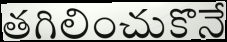
తగిలించుకొనే